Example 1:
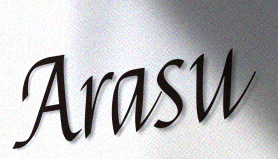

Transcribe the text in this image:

Arasu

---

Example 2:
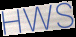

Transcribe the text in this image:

HWS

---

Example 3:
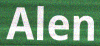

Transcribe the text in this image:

Alen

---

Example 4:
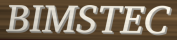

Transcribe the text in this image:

BIMSTEC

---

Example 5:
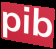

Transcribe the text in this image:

pib